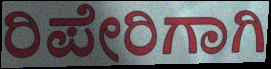
ರಿಪೇರಿಗಾಗಿ